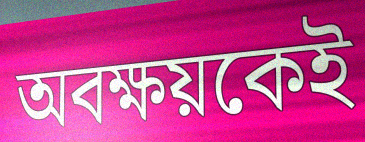
অবক্ষয়কেই